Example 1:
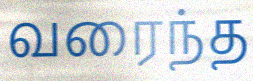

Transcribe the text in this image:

வரைந்த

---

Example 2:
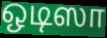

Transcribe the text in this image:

ஒடிஸா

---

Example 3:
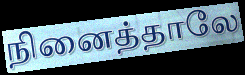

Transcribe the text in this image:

நினைத்தாலே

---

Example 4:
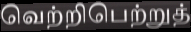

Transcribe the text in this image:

வெற்றிபெற்றுத்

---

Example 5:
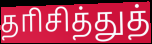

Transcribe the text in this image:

தரிசித்துத்